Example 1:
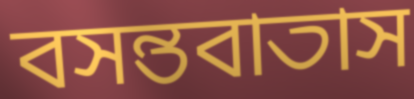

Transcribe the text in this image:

বসন্তবাতাস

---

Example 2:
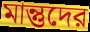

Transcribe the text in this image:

মান্তুদের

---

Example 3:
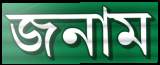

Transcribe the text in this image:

জনাম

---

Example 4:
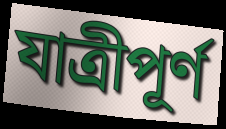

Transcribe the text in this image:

যাত্রীপূর্ণ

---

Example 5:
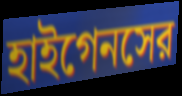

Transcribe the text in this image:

হাইগেনসের